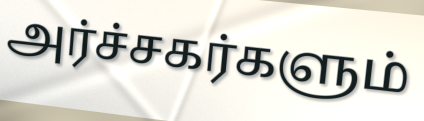
அர்ச்சகர்களும்